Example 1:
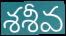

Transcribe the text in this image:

శశీవ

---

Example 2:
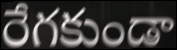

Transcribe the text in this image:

రేగకుండా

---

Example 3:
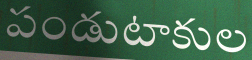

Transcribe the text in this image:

పండుటాకుల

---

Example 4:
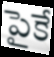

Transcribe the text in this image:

పైకే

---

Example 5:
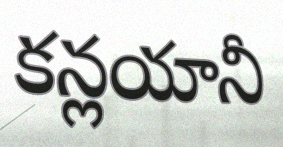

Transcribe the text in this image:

కన్లయానీ